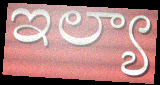
ఇల్యా